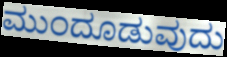
ಮುಂದೂಡುವುದು